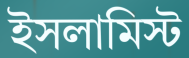
ইসলামিস্ট